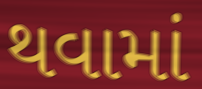
થવામાં